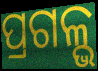
ପ୍ରଗଳ୍ଭ